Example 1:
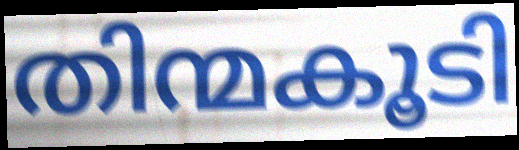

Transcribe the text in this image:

തിന്മകൂടി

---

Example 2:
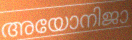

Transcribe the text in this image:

അയോനിജാ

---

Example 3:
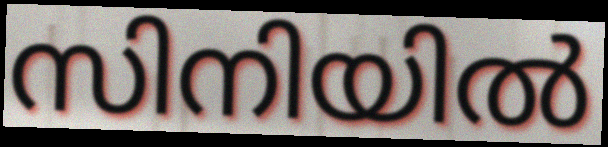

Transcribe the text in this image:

സിനിയിൽ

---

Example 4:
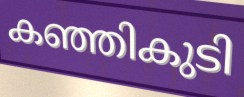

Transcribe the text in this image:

കഞ്ഞികുടി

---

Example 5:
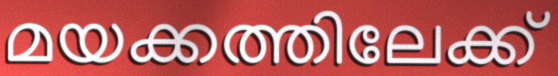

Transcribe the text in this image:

മയക്കത്തിലേക്ക്